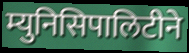
म्युनिसिपालिटीने